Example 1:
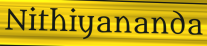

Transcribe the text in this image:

Nithiyananda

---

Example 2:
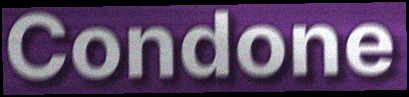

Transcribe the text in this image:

Condone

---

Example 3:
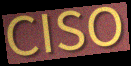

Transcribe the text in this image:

CISO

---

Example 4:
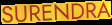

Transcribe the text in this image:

SURENDRA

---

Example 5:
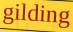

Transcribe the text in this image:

gilding